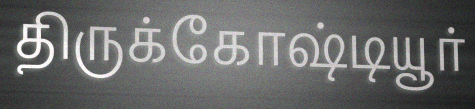
திருக்கோஷ்டியூர்